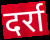
दर्रा